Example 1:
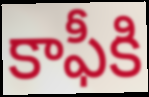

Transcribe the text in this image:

కాఫీకి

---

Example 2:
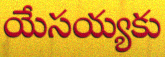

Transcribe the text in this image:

యేసయ్యకు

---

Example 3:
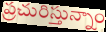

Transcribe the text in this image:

ప్రచురిస్తున్నాం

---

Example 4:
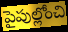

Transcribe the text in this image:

పైపుల్లోంచి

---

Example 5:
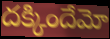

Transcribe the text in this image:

దక్కిందేమో